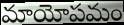
మాయోపమం